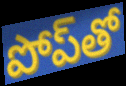
పోప్‌తో